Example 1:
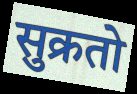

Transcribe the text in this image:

सुक्रतो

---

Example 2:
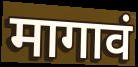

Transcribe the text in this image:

मागावं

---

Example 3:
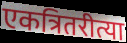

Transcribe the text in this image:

एकत्रितरीत्या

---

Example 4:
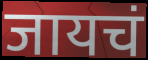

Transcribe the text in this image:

जायचं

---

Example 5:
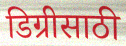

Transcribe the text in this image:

डिग्रीसाठी